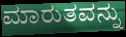
ಮಾರುತವನ್ನು